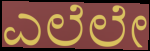
ಎಲೆಲೇ